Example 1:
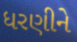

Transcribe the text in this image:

ધરણીને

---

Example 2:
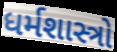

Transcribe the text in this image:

ધર્મશાસ્ત્રો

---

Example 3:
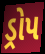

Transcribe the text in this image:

ડ્રોપ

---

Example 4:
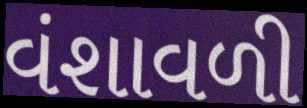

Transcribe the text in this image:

વંશાવળી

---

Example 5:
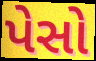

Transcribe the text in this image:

પેસો